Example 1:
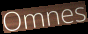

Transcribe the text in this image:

Omnes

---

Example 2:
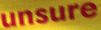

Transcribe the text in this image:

unsure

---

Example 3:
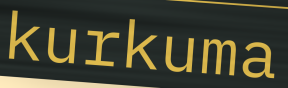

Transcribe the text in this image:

kurkuma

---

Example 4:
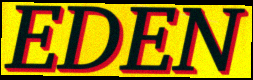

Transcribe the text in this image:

EDEN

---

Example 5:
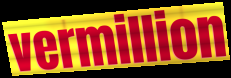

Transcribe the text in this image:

vermillion